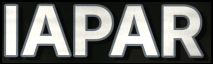
IAPAR